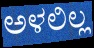
ಅಳಲಿಲ್ಲ